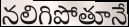
నలిగిపోతూనే